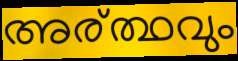
അര്ത്ഥവും